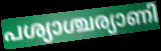
പശ്യാശ്ചര്യാണി